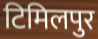
टिमिलपुर